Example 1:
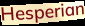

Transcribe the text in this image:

Hesperian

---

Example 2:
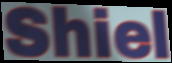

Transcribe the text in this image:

Shiel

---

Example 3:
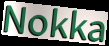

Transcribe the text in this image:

Nokka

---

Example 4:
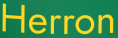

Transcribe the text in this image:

Herron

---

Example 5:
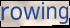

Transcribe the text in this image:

rowing